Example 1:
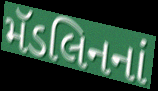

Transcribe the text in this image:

મૅડલિનનાં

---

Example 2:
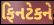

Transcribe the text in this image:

ફિનટેકને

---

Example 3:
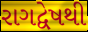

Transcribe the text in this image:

રાગદ્વેષથી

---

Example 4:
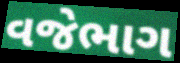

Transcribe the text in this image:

વજેભાગ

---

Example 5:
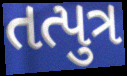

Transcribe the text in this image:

તત્પુત્ર